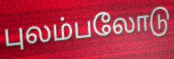
புலம்பலோடு